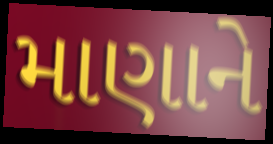
માણાને